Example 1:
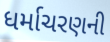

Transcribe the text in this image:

ધર્માચરણની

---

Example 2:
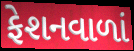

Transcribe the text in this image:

ફેશનવાળાં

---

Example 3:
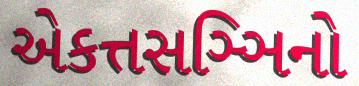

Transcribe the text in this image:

એકત્તસઞ્ઞિનો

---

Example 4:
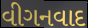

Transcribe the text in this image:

વીગનવાદ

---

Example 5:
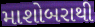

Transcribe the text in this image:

માશોબરાથી